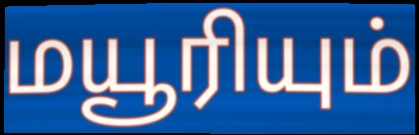
மயூரியும்